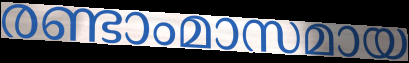
രണ്ടാംമാസമായ